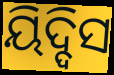
ୟିଦ୍ଦିସ